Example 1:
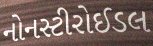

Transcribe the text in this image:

નોનસ્ટીરોઈડલ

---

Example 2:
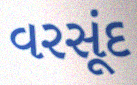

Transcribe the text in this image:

વરસૂંદ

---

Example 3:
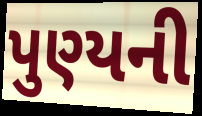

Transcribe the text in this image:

પુણ્યની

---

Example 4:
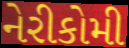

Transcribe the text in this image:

નેરીકોમી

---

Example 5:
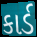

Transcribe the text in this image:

કાર્ડ